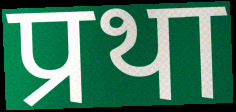
प्रथा